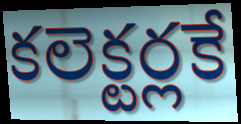
కలెక్టర్లకే